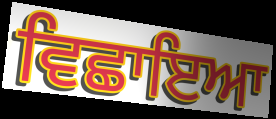
ਵਿਛਾਇਆ